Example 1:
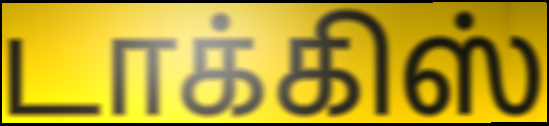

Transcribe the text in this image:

டாக்கிஸ்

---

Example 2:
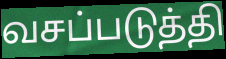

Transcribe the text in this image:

வசப்படுத்தி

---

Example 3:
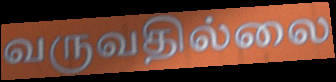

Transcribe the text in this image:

வருவதில்லை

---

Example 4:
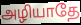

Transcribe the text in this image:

அழியாதே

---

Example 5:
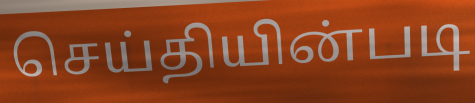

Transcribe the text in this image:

செய்தியின்படி